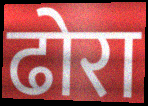
ढोरा